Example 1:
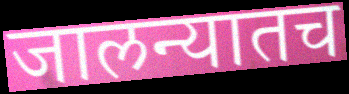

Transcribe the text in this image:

जालन्यातच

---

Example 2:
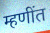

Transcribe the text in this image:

म्हणींत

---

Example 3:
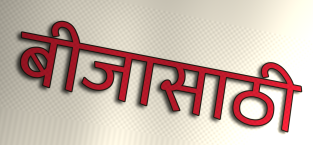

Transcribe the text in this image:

बीजासाठी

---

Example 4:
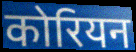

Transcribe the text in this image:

कोरियन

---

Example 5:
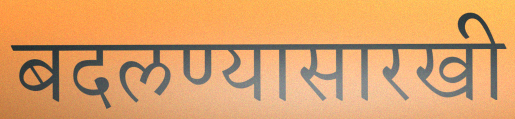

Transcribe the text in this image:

बदलण्यासारखी